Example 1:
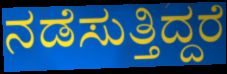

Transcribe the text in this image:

ನಡೆಸುತ್ತಿದ್ದರೆ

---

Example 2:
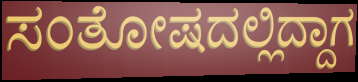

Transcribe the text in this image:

ಸಂತೋಷದಲ್ಲಿದ್ದಾಗ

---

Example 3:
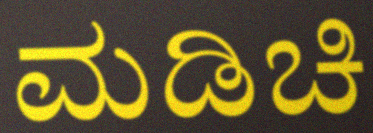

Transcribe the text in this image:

ಮಡಿಚಿ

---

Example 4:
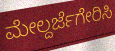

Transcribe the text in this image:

ಮೇಲ್ದರ್ಜೆಗೇರಿಸಿ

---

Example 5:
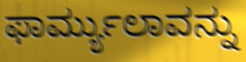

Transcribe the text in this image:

ಫಾರ್ಮ್ಯುಲಾವನ್ನು